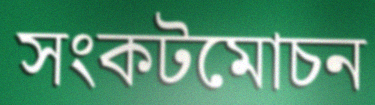
সংকটমোচন